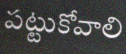
పట్టుకోవాలి